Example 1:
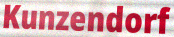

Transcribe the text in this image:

Kunzendorf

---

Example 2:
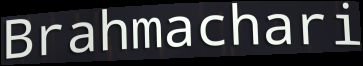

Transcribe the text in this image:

Brahmachari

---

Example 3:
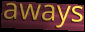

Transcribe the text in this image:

aways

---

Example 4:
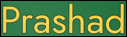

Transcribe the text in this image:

Prashad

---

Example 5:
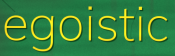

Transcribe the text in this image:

egoistic